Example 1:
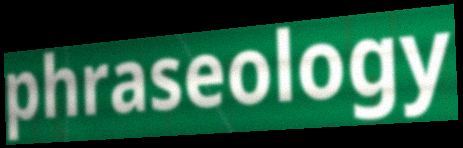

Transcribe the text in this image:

phraseology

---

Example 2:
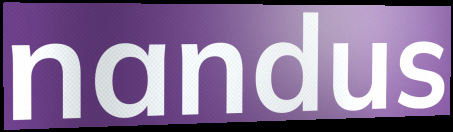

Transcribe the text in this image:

nandus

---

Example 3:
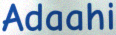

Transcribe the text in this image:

Adaahi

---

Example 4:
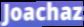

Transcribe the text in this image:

Joachaz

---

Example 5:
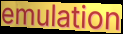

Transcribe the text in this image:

emulation